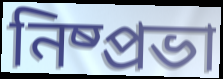
নিষ্প্রভা